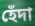
হেঁদা